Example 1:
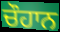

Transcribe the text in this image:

ਚੌਹਾਨ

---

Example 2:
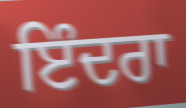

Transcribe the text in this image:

ਇੰਦਰਾ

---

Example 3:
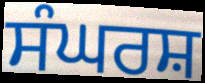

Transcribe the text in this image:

ਸੰਘਰਸ਼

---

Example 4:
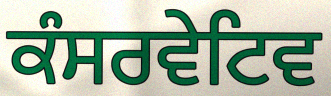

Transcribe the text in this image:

ਕੰਸਰਵੇਟਿਵ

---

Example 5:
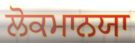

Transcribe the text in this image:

ਲੋਕਮਾਨਯਾ